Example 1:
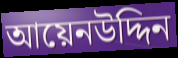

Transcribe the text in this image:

আয়েনউদ্দিন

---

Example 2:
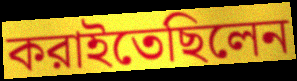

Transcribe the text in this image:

করাইতেছিলেন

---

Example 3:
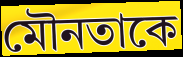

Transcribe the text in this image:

মৌনতাকে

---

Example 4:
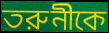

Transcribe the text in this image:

তরুনীকে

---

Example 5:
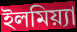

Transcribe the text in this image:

ইলমিয়্যা